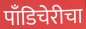
पाँडिचेरीचा